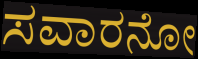
ಸವಾರನೋ